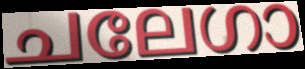
ചലേഗാ